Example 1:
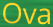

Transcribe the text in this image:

Ova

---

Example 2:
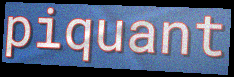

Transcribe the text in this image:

piquant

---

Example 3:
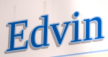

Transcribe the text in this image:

Edvin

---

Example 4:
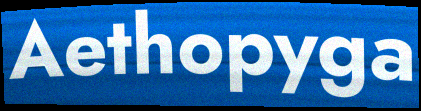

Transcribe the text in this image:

Aethopyga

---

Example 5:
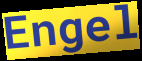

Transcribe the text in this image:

Engel